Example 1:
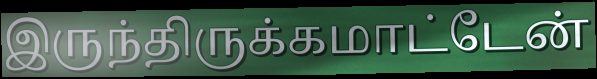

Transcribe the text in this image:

இருந்திருக்கமாட்டேன்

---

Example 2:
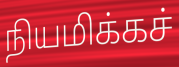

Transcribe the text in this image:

நியமிக்கச்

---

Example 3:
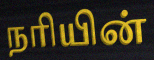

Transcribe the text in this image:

நரியின்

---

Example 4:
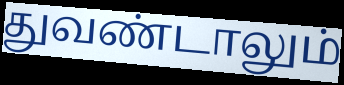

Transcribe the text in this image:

துவண்டாலும்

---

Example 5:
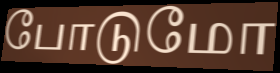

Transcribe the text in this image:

போடுமோ